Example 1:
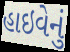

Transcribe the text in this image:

હાઇવેનું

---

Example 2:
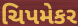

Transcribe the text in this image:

ચિપમેકર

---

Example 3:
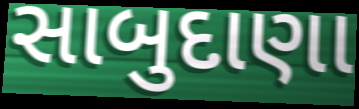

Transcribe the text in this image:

સાબુદાણા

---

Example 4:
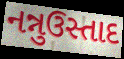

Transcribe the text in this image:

નન્નુઉસ્તાદ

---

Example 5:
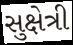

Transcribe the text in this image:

સુક્ષેત્રી